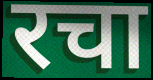
रचा